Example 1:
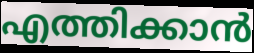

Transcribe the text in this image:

എത്തിക്കാൻ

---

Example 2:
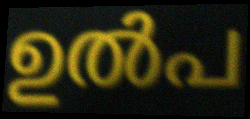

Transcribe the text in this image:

ഉൽപ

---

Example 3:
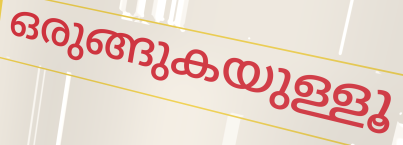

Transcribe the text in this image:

ഒരുങ്ങുകയുള്ളൂ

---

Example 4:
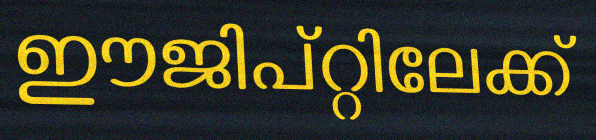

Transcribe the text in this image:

ഈജിപ്റ്റിലേക്ക്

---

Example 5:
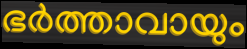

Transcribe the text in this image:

ഭർത്താവായും